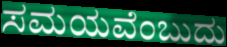
ಸಮಯವೆಂಬುದು